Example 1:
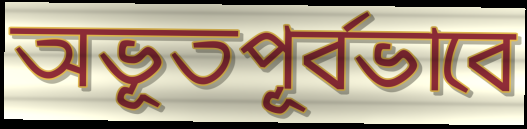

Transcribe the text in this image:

অভূতপূর্বভাবে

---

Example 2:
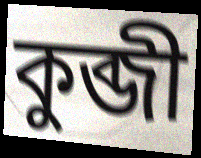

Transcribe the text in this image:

কুব্জী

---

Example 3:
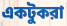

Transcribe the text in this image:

একটুকরা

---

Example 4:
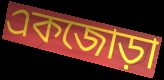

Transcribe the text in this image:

একজোড়া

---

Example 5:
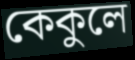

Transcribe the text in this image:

কেকুলে